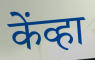
केंव्हा